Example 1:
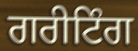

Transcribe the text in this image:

ਗਰੀਟਿੰਗ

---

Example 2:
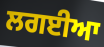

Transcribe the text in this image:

ਲਗਈਆ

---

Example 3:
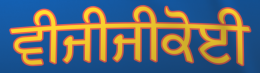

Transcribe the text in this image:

ਵੀਜੀਜੀਕੋਈ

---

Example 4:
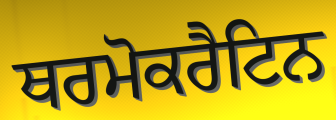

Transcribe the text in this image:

ਥਰਮੋਕਰੈਟਿਨ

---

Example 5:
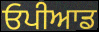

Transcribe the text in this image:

ਓਪੀਆਡ